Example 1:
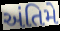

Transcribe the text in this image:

અંતિમે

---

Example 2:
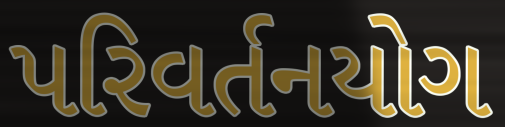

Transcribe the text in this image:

પરિવર્તનયોગ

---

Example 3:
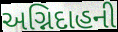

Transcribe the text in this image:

અગ્નિદાહની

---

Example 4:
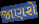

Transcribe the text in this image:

જાણશે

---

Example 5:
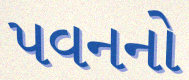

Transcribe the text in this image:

પવનનો